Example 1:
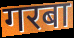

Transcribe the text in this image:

गरबा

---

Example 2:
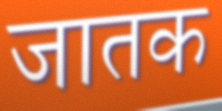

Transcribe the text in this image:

जातक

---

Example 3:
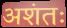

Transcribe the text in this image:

अशंतः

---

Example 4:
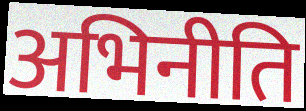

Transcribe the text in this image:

अभिनीति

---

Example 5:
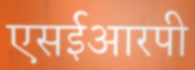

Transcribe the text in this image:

एसईआरपी